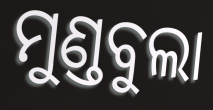
ମୁଣ୍ଡବୁଲା